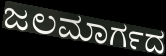
ಜಲಮಾರ್ಗದ